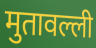
मुतावल्ली